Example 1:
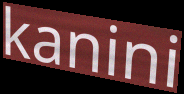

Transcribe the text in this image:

kanini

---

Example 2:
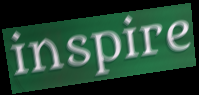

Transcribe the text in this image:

inspire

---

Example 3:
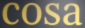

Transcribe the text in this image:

cosa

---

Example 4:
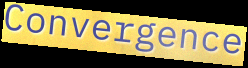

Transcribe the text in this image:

Convergence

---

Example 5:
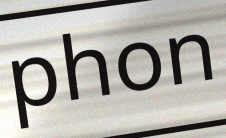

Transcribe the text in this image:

phon